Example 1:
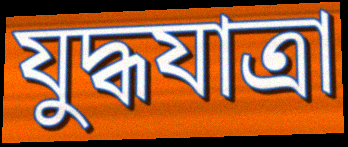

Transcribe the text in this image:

যুদ্ধযাত্রা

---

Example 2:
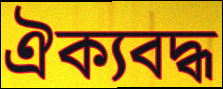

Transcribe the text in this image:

ঐক্যবদ্ধ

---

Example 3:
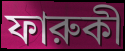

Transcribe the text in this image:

ফারুকী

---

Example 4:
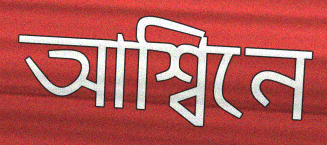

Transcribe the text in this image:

আশ্বিনে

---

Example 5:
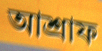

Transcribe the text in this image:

আশ্রাফ